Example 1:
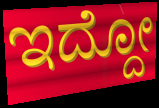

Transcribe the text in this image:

ಇದ್ದೋ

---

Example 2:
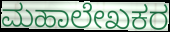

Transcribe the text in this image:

ಮಹಾಲೇಖಕರ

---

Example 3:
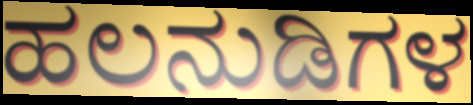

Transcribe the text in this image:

ಹಲನುಡಿಗಳ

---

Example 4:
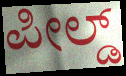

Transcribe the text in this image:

ಪೀಲ್ಡ್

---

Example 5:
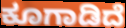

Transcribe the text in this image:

ಕೂಗಾಡಿದೆ